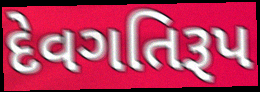
દેવગતિરૂપ